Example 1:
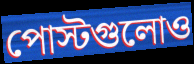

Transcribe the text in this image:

পোস্টগুলোও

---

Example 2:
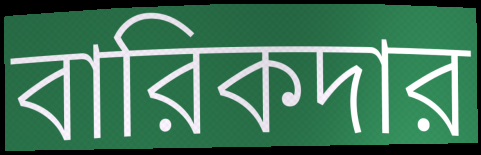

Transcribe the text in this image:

বারিকদার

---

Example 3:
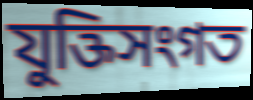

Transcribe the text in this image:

যুক্তিসংগত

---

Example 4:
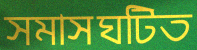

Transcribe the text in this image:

সমাসঘটিত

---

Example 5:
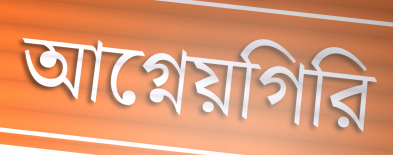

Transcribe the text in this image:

আগ্নেয়গিরি